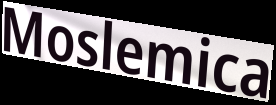
Moslemica